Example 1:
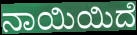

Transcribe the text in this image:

ನಾಯಿಯಿದೆ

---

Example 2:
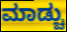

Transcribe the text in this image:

ಮಾಡ್ಚು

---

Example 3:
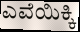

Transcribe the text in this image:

ಎವೆಯಿಕ್ಕಿ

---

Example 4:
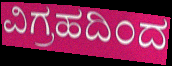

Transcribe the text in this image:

ವಿಗ್ರಹದಿಂದ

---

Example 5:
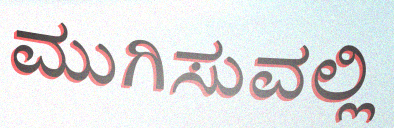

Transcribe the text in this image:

ಮುಗಿಸುವಲ್ಲಿ